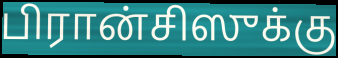
பிரான்சிஸுக்கு